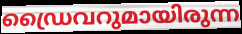
ഡ്രൈവറുമായിരുന്ന